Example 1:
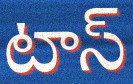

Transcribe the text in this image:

టాస్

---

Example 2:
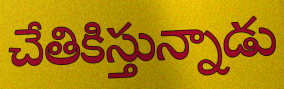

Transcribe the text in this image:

చేతికిస్తున్నాడు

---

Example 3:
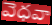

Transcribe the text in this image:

వెధవా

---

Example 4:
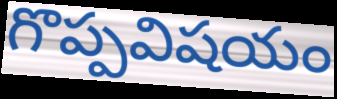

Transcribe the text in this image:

గొప్పవిషయం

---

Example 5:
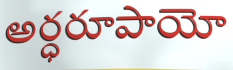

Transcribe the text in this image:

అర్ధరూపాయో